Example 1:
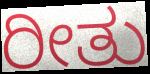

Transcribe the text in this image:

ರೀತು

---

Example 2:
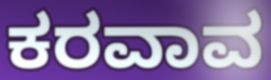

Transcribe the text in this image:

ಕರವಾವ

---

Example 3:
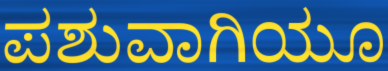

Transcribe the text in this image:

ಪಶುವಾಗಿಯೂ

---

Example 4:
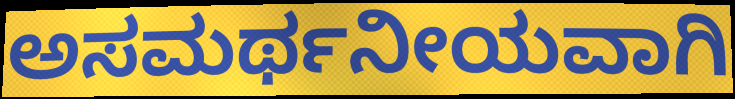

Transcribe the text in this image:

ಅಸಮರ್ಥನೀಯವಾಗಿ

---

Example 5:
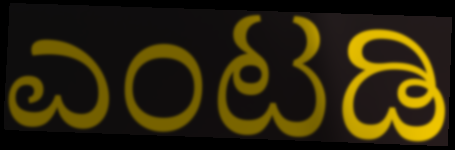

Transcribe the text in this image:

ಎಂಟಡಿ